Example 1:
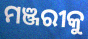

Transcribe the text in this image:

ମଞ୍ଜରୀକୁ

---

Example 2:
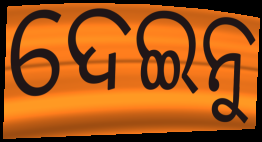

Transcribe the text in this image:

ଦେଇନୁ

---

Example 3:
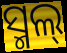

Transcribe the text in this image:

ସ୍ମଲ୍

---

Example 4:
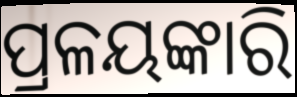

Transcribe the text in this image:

ପ୍ରଳୟଙ୍କାରି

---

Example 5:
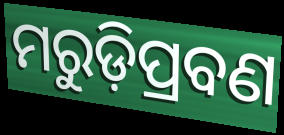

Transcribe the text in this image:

ମରୁଡ଼ିପ୍ରବଣ